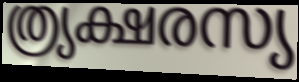
ത്ര്യക്ഷരസ്യ